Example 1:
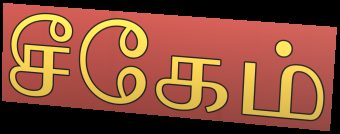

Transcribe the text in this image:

சீகேம்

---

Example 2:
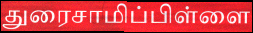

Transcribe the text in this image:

துரைசாமிப்பிள்ளை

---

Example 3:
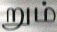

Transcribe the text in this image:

றும்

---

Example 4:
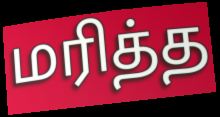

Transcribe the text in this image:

மரித்த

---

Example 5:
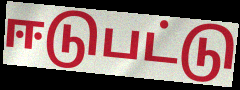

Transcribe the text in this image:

ஈடுபட்டு